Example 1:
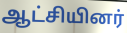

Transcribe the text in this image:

ஆட்சியினர்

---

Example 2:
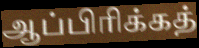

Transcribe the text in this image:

ஆப்பிரிக்கத்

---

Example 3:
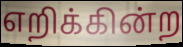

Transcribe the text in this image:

எறிக்கின்ற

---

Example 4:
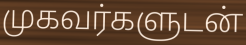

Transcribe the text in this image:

முகவர்களுடன்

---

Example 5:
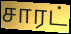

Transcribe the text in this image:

சாரட்